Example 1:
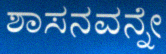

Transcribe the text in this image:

ಶಾಸನವನ್ನೇ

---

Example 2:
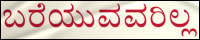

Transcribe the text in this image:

ಬರೆಯುವವರಿಲ್ಲ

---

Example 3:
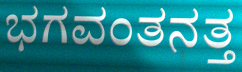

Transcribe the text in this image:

ಭಗವಂತನತ್ತ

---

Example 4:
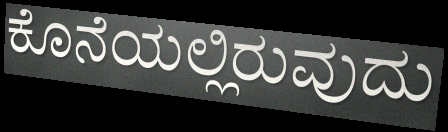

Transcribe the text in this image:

ಕೊನೆಯಲ್ಲಿರುವುದು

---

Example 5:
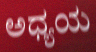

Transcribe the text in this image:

ಅಧ್ಯಯ